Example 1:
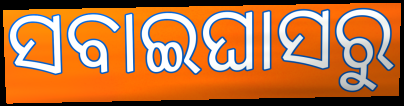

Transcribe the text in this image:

ସବାଇଘାସରୁ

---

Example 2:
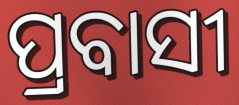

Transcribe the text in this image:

ପ୍ରବାସୀ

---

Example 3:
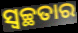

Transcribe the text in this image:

ସ୍ଵଚ୍ଛତାର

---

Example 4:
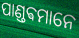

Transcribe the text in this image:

ପାଣ୍ଡଵମାନେ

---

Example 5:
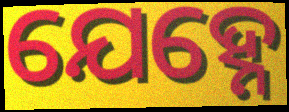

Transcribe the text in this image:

ଯେହ୍ନେ